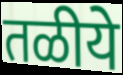
तळीये